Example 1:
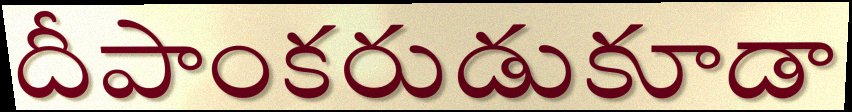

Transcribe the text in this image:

దీపాంకరుడుకూడా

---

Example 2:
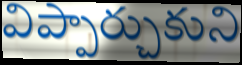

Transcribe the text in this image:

విప్పార్చుకుని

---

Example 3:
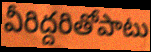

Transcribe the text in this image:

వీరిద్దరితోపాటు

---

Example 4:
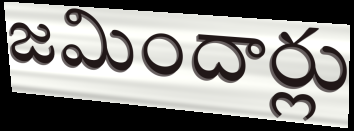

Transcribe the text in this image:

జమిందార్లు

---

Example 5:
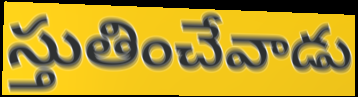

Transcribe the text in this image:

స్తుతించేవాడు